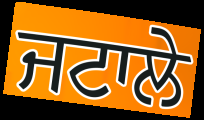
ਜਟਾਲੇ